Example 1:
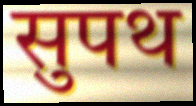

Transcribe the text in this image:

सुपथ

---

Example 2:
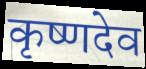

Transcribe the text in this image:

कृष्णदेव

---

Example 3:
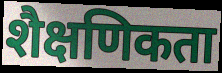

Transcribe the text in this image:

शैक्षणिकता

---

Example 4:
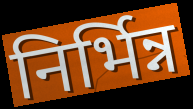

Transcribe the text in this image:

निर्भिन्न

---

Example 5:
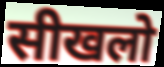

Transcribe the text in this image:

सीखलो